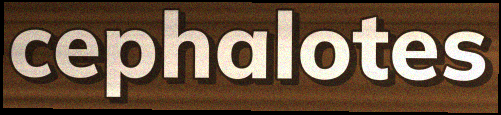
cephalotes